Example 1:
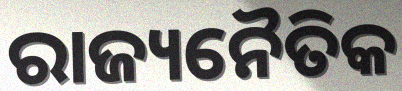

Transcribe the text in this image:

ରାଜ୍ୟନୈତିକ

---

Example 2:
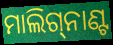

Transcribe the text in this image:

ମାଲିଗ୍‌ନାଣ୍ଟ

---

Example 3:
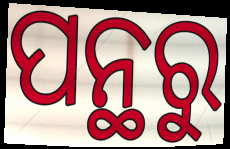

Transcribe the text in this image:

ପନ୍ଥରୁ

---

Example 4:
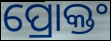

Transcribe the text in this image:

ପ୍ରୋକ୍ତଂ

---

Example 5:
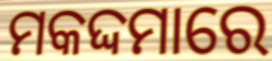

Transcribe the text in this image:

ମକଦ୍ଦମାରେ